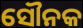
ସୌନକ